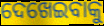
ଦେଖେଇବାକୁ